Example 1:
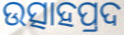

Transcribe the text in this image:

ଉତ୍ସାହପ୍ରଦ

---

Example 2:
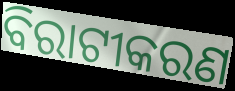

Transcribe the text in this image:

ବିରାଟୀକରଣ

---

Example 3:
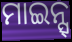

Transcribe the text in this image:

ମାଇନ୍ସ୍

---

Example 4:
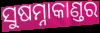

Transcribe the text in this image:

ସୁଷମ୍ନାକାଣ୍ଡର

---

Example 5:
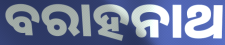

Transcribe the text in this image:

ବରାହନାଥ